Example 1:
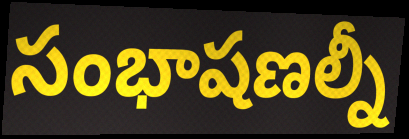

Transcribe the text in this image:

సంభాషణల్నీ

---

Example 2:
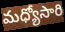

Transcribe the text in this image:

మధ్యోసారి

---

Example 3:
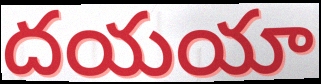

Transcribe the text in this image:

దయయా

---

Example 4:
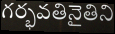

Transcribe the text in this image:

గర్భవతినైతిని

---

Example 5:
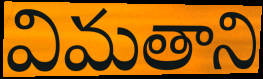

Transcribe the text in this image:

విమతాని